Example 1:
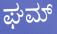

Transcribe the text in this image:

ಘಮ್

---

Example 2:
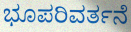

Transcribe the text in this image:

ಭೂಪರಿವರ್ತನೆ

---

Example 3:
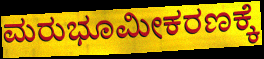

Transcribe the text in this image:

ಮರುಭೂಮೀಕರಣಕ್ಕೆ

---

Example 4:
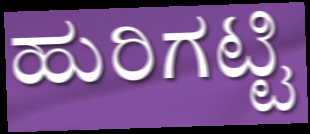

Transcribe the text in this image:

ಹುರಿಗಟ್ಟಿ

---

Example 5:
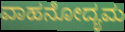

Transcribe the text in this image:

ವಾಹನೋದ್ಯಮ